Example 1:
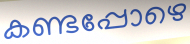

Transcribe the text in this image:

കണ്ടപ്പോഴെ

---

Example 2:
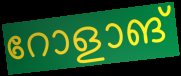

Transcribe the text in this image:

റോളാങ്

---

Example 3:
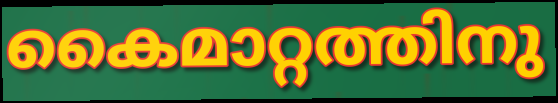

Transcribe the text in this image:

കൈമാറ്റത്തിനു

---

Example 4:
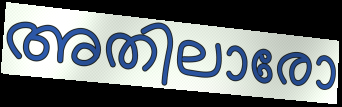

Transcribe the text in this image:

അതിലാരോ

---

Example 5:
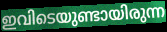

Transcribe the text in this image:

ഇവിടെയുണ്ടായിരുന്ന